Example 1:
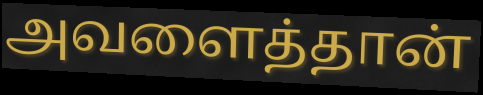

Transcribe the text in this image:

அவளைத்தான்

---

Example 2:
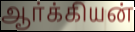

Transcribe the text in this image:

ஆர்க்கியன்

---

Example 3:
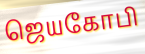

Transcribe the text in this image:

ஜெயகோபி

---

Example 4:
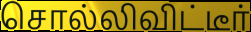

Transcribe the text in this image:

சொல்லிவிட்டீர்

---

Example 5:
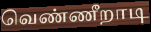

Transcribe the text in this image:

வெண்ணீறாடி